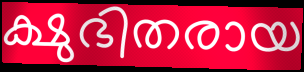
ക്ഷുഭിതരായ